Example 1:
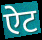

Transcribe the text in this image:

ऐट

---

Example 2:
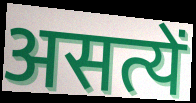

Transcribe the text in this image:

असत्यें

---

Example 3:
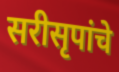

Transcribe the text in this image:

सरीसृपांचे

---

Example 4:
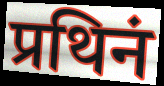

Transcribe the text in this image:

प्रथिनं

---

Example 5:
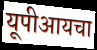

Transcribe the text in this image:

यूपीआयचा